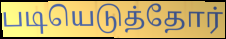
படியெடுத்தோர்